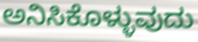
ಅನಿಸಿಕೊಳ್ಳುವುದು